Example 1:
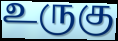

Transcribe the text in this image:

உருகு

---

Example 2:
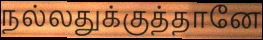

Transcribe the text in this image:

நல்லதுக்குத்தானே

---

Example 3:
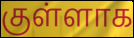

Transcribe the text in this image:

குள்ளாக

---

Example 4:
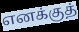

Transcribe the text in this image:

எனக்குத்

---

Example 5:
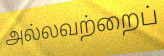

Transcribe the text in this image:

அல்லவற்றைப்